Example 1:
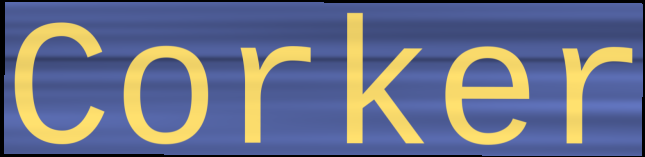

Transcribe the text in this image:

Corker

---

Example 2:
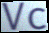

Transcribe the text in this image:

Vc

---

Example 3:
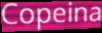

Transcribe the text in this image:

Copeina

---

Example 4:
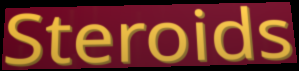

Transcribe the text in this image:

Steroids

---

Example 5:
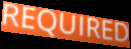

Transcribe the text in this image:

REQUIRED